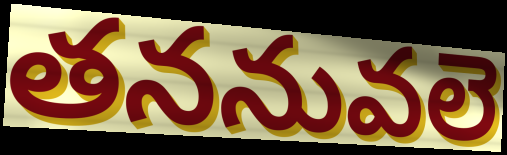
తననువలె